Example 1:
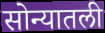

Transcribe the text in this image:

सोन्यातली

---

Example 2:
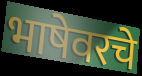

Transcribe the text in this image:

भाषेवरचे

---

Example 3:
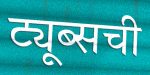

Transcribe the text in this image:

ट्यूब्सची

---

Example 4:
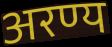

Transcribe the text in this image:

अरण्य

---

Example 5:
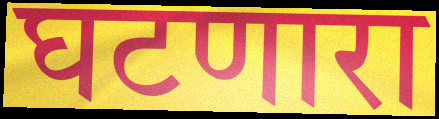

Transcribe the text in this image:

घटणारा